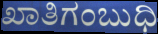
ಖಾತಿಗಂಬುಧಿ